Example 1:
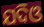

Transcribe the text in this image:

ଯଦିଓ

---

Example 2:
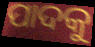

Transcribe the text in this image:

ପାଦକୁ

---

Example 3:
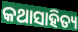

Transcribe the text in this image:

କଥାସାହିତ୍ୟ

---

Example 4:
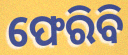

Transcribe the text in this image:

ଫେରିବି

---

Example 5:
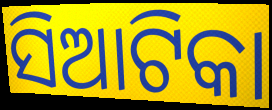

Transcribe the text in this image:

ସିଆଟିକା